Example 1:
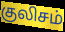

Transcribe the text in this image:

குலிசம்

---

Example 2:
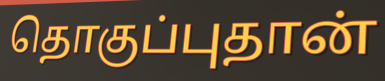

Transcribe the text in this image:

தொகுப்புதான்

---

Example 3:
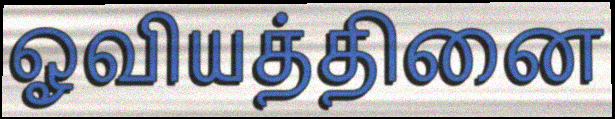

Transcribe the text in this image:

ஓவியத்தினை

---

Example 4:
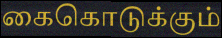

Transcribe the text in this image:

கைகொடுக்கும்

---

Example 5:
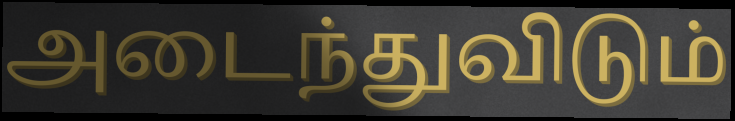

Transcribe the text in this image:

அடைந்துவிடும்